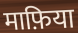
माफ़िया